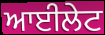
ਆਈਲੇਟ